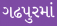
ગઢપુરમાં